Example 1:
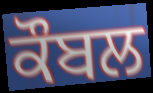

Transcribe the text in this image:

ਕੌਬਲ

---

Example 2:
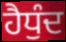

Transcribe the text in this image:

ਹੈਧੁੰਦ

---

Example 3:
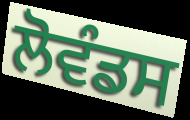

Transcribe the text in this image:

ਲੋਵੰਡਸ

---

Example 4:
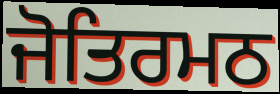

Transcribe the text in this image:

ਜੋਤਿਰਮਠ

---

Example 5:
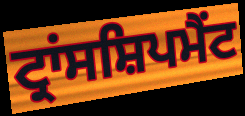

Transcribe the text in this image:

ਟ੍ਰਾਂਸਸ਼ਿਪਮੈਂਟ